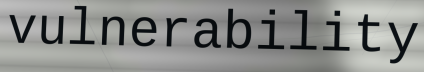
vulnerability